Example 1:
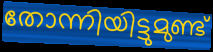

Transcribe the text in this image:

തോന്നിയിട്ടുമുണ്ട്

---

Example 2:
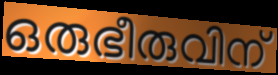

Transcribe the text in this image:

ഒരുഭീരുവിന്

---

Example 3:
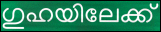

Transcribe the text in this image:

ഗുഹയിലേക്ക്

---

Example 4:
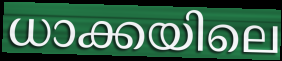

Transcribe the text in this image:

ധാക്കയിലെ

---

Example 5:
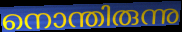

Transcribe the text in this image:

നൊന്തിരുന്നു